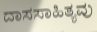
ದಾಸಸಾಹಿತ್ಯವು